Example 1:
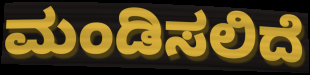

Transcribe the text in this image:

ಮಂಡಿಸಲಿದೆ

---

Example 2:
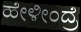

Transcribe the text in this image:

ಹೇಳೀಂದ್ರೆ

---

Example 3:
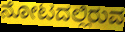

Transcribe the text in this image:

ನೋಟದಲ್ಲಿರುವ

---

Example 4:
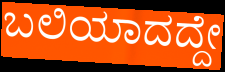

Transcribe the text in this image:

ಬಲಿಯಾದದ್ದೇ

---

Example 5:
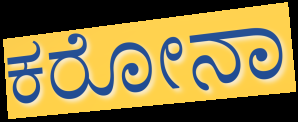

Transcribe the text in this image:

ಕರೋನಾ